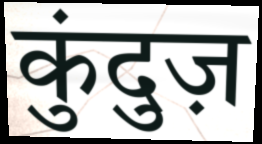
कुंदुज़